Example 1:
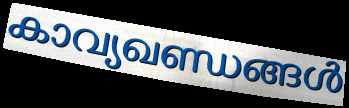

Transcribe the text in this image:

കാവ്യഖണ്ഡങ്ങൾ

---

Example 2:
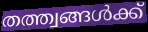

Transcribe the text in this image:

തത്ത്വങ്ങൾക്ക്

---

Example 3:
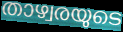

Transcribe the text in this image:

താഴ്വരയുടെ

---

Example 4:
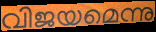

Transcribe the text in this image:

വിജയമെന്നു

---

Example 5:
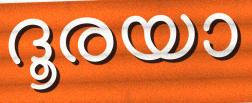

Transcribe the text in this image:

ദൂരയാ